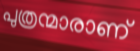
പുത്രന്മാരാണ്